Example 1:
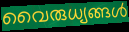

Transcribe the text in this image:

വൈരുധ്യങ്ങൾ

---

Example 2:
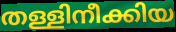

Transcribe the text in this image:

തള്ളിനീക്കിയ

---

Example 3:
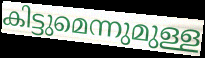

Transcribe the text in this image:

കിട്ടുമെന്നുമുള്ള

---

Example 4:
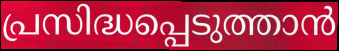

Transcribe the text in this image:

പ്രസിദ്ധപ്പെടുത്താൻ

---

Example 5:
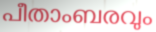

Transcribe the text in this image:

പീതാംബരവും